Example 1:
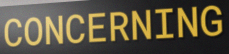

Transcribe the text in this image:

CONCERNING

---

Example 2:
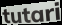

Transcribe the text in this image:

tutari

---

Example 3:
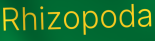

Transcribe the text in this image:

Rhizopoda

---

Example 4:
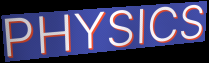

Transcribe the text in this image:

PHYSICS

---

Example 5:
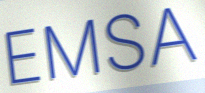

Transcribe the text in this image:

EMSA